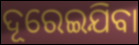
ଦୂରେଇଯିବା